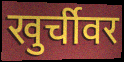
खुर्चीवर